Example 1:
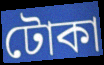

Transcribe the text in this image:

টোকা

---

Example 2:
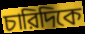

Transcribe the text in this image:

চারিদিকে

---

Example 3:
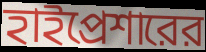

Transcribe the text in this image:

হাইপ্রেশারের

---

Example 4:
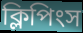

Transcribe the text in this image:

ক্লিপিংস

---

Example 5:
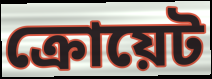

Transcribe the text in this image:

ক্রোয়েট